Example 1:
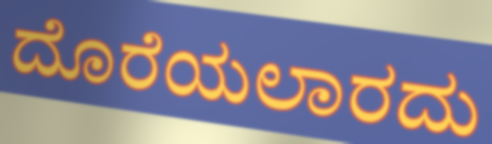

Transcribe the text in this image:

ದೊರೆಯಲಾರದು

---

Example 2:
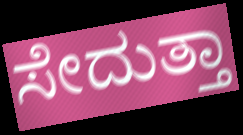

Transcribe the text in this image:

ಸೇದುತ್ತಾ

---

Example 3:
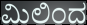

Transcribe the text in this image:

ಮಿಲಿಂದ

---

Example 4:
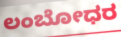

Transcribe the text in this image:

ಲಂಬೋಧರ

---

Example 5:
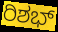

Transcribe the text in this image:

ರಿಶಭ್